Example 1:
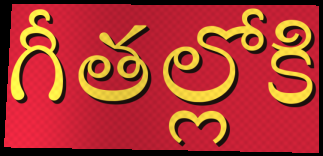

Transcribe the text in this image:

గీతల్లోకి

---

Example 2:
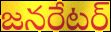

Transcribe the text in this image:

జనరేటర్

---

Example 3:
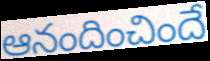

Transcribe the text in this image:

ఆనందించిందే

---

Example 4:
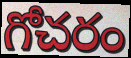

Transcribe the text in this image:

గోచరం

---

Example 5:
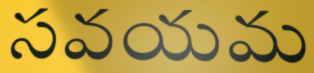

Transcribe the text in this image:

సవయమ